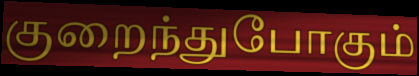
குறைந்துபோகும்